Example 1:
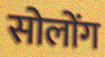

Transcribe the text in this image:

सोलोंग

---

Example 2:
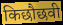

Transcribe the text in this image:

किछौछवी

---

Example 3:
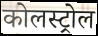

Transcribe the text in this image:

कोलस्ट्रोल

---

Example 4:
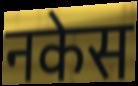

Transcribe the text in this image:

नकेस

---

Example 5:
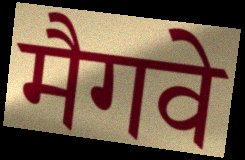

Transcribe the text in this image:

मैगवे